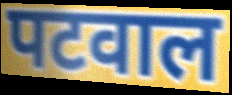
पटवाल